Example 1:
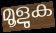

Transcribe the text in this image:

മൂളുക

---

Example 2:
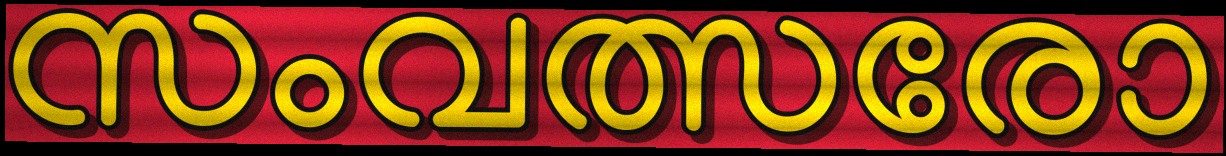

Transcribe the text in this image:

സംവത്സരോ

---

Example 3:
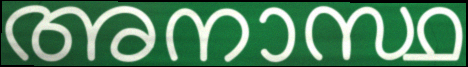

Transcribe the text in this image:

അനാസ്ഥ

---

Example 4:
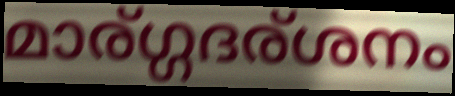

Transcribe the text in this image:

മാര്ഗ്ഗദര്ശനം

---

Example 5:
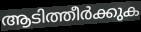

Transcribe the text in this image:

ആടിത്തീർക്കുക